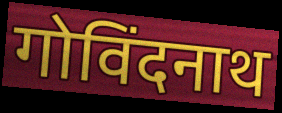
गोविंदनाथ